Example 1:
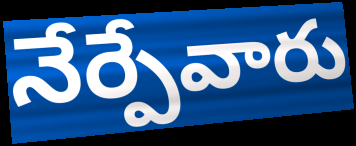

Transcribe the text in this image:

నేర్పేవారు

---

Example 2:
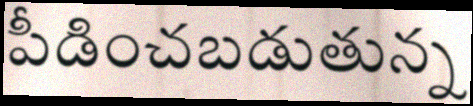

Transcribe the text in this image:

పీడించబడుతున్న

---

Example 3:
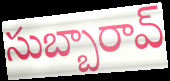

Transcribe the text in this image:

సుబ్బారావ్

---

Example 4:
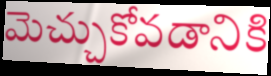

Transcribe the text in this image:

మెచ్చుకోవడానికి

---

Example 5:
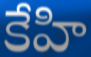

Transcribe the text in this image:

కేహి